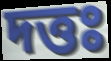
দত্তঃ